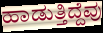
ಹಾಡುತ್ತಿದ್ದೆವು